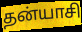
தன்யாசி